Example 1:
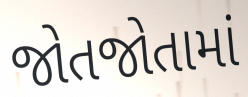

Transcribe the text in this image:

જોતજોતામાં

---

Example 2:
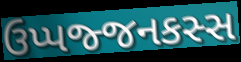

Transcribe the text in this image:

ઉપ્પજ્જનકસ્સ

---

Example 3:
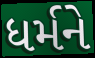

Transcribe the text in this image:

ધર્મને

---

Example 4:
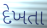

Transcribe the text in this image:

દેખતા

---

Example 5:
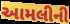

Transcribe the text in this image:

આમલીની